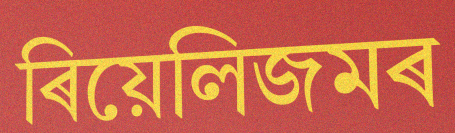
ৰিয়েলিজমৰ